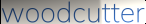
woodcutter